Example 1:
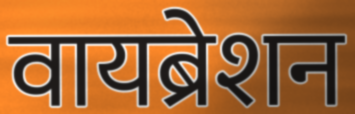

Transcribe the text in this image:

वायब्रेशन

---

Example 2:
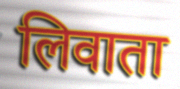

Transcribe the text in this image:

लिवाता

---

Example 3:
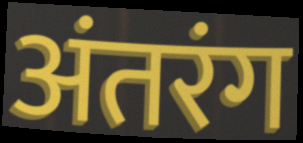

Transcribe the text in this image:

अंतरंग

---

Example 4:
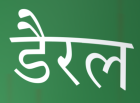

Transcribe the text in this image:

डैरल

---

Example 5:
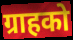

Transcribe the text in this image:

ग्राहको